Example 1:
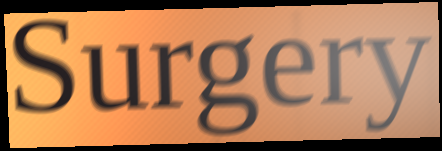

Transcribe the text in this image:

Surgery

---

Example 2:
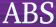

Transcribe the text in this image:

ABS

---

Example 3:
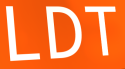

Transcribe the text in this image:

LDT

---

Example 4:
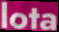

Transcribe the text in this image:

lota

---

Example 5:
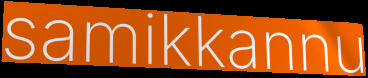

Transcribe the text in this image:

samikkannu